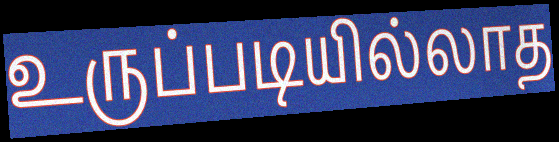
உருப்படியில்லாத